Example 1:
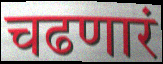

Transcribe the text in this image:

चढणारं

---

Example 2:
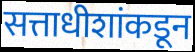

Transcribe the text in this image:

सत्ताधीशांकडून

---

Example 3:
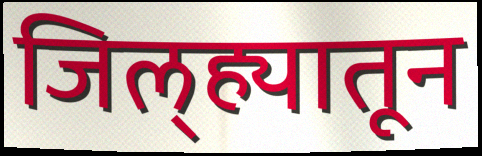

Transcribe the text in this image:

जिल्ह्यातून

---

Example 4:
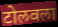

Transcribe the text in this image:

टोलवला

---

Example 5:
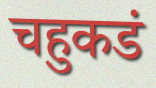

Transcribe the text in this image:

चहुकडं